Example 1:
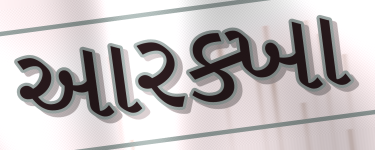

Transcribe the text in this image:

આરક્ખા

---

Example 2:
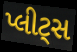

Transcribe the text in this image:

પ્લીટ્સ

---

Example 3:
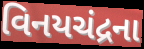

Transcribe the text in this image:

વિનયચંદ્રના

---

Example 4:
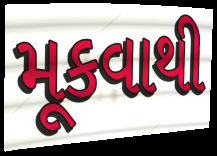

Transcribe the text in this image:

મૂકવાથી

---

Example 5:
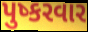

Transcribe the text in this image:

પુષ્કરવાર